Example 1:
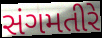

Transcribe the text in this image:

સંગમતીરે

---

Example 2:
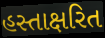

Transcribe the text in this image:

હસ્તાક્ષરિત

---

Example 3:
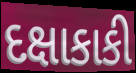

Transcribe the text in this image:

દક્ષાકાકી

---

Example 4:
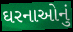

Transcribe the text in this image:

ઘરનાઓનું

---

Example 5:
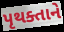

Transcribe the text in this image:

પૃથક્તાને